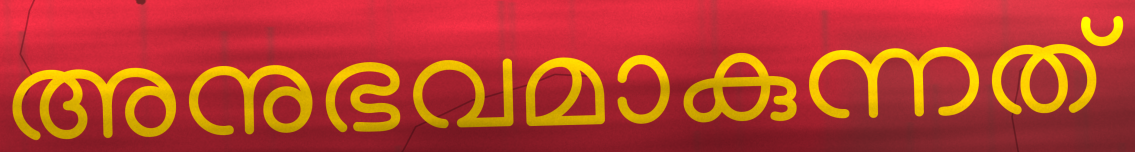
അനുഭവമാകുന്നത്